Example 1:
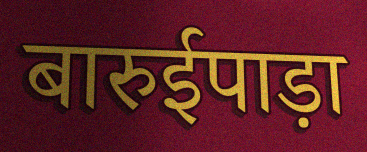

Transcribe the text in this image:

बारुईपाड़ा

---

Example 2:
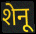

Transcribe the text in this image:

शेनू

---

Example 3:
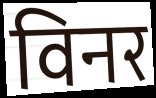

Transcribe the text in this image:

विनर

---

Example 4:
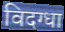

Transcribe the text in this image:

विदग्धा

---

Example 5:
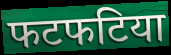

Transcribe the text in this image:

फटफटिया